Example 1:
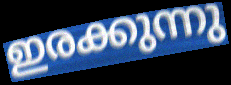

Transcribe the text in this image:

ഇരക്കുന്നു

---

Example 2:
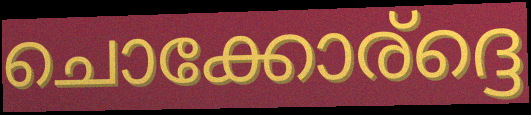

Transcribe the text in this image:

ചൊക്കോര്ദ്ദെ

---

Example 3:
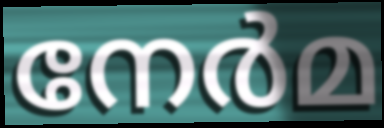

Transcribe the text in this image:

നേർമ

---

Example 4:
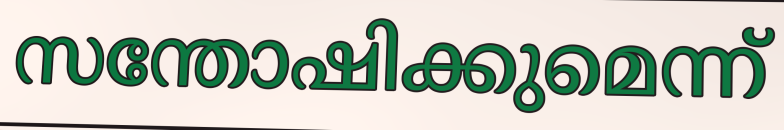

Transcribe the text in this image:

സന്തോഷിക്കുമെന്ന്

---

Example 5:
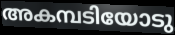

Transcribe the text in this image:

അകമ്പടിയോടു